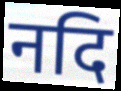
नदि